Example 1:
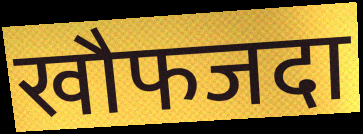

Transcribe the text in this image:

खौफजदा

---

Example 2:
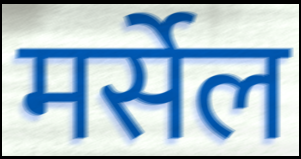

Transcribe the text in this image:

मर्सेल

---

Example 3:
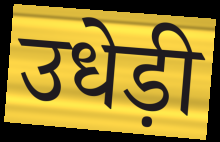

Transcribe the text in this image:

उधेड़ी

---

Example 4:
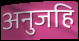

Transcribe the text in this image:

अनुजहि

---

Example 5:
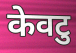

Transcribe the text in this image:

केवटु